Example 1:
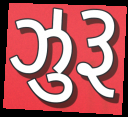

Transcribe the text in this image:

ઝુરૂ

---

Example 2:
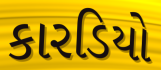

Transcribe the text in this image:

કારડિયો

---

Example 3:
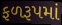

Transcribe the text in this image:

ફળરૂપમાં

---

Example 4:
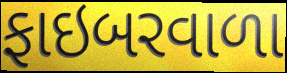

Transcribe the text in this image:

ફાઇબરવાળા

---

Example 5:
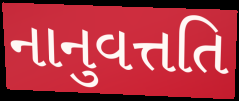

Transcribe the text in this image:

નાનુવત્તતિ